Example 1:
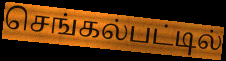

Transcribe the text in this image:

செங்கல்பட்டில்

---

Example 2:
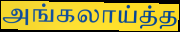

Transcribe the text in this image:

அங்கலாய்த்த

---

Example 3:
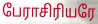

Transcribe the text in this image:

பேராசிரியரே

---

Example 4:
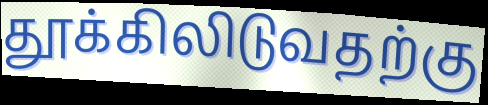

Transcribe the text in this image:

தூக்கிலிடுவதற்கு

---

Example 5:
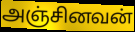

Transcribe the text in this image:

அஞ்சினவன்